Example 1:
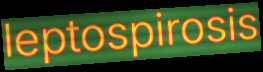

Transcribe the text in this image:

leptospirosis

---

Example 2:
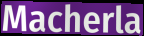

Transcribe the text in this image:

Macherla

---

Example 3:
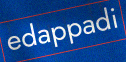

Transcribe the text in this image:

edappadi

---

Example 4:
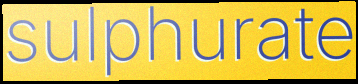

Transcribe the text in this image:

sulphurate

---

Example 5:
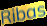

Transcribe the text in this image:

Ribas